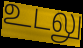
உடலு